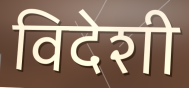
विदेशी